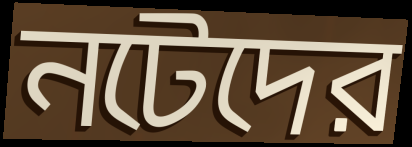
নটেদের